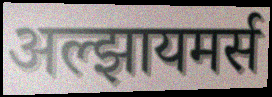
अल्झायमर्स